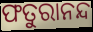
ଫତୁରାନନ୍ଦ